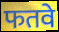
फतवे